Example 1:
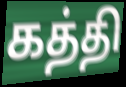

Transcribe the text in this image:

கத்தி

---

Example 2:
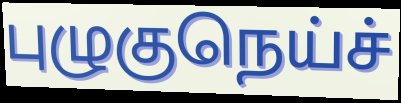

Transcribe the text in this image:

புழுகுநெய்ச்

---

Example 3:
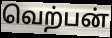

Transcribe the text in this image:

வெற்பன்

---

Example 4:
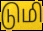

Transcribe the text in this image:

டுமி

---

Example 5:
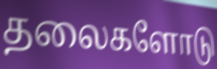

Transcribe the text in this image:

தலைகளோடு